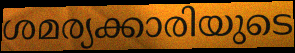
ശമര്യക്കാരിയുടെ